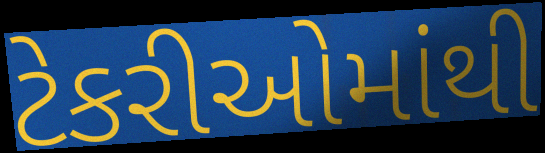
ટેકરીઓમાંથી